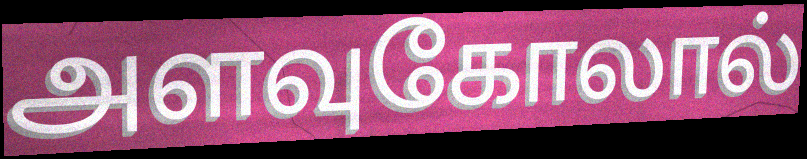
அளவுகோலால்